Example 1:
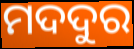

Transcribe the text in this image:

ମଦଦୁର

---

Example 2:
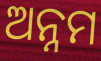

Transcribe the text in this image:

ଅନ୍ନମ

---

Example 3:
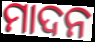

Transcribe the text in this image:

ମାଦନ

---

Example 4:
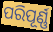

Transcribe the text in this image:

ପରିପୂର୍ଣ୍ଣ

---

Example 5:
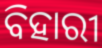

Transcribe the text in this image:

ବିହାରୀ